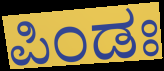
ಪಿಂಡಃ